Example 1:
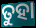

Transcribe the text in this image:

ତୁହା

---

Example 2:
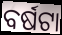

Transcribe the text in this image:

ବର୍ଷଟା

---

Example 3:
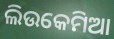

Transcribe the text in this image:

ଲିଉକେମିଆ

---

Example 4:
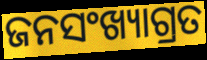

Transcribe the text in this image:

ଜନସଂଖ୍ୟାଗ୍ରତ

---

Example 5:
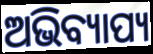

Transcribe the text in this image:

ଅଭିବ୍ୟାପ୍ୟ